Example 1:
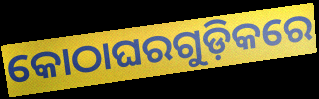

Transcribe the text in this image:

କୋଠାଘରଗୁଡ଼ିକରେ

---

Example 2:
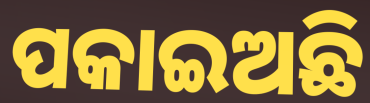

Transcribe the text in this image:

ପକାଇଅଛି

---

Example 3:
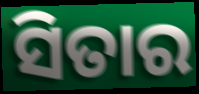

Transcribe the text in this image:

ସିତାର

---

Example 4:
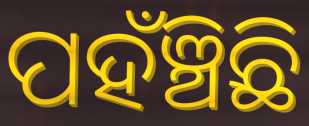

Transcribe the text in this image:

ପହଁଞ୍ଚିଛି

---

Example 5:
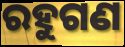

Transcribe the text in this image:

ରହୁଗଣ